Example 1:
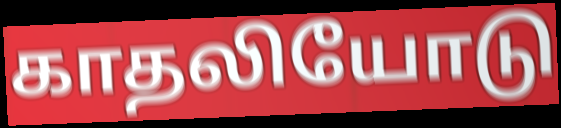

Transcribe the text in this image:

காதலியோடு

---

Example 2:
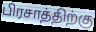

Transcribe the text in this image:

பிரசாத்திற்கு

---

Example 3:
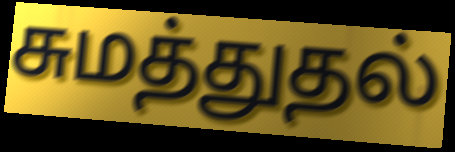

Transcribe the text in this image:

சுமத்துதல்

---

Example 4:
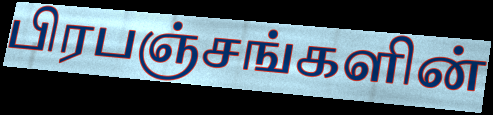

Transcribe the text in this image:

பிரபஞ்சங்களின்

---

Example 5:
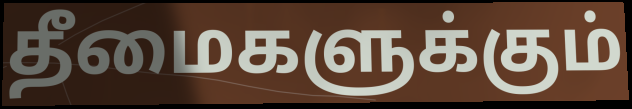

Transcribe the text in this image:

தீமைகளுக்கும்